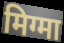
मिग्मा